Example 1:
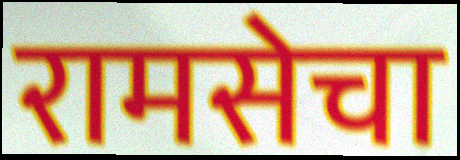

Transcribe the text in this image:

रामसेचा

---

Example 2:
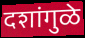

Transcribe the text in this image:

दशांगुळे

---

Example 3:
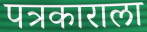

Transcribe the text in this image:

पत्रकाराला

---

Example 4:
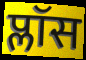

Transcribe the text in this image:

प्लॉस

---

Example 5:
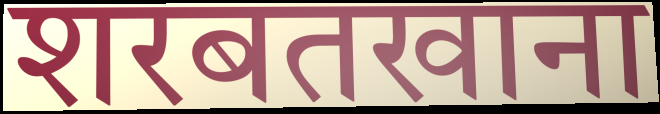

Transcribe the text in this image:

शरबतखाना